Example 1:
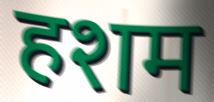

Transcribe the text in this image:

हशम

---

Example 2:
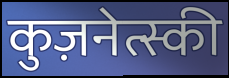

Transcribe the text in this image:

कुज़नेत्स्की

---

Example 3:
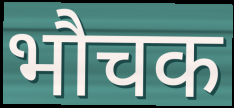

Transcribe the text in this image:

भौचक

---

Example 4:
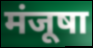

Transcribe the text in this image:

मंजूषा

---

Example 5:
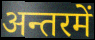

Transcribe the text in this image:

अन्तरमें